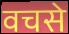
वचसे